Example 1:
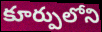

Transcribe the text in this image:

కూర్పులోని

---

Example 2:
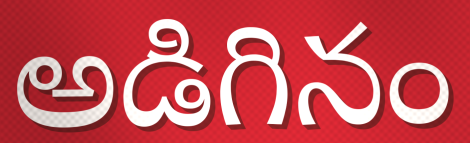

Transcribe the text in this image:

అడిగినం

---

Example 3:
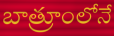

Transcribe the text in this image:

బాత్రూంలోనే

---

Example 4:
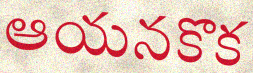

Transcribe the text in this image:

ఆయనకొక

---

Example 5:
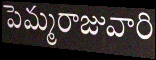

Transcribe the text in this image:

పెమ్మరాజువారి